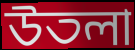
উতলা